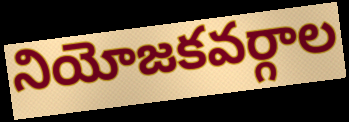
నియోజకవర్గాల